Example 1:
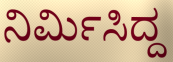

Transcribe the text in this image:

ನಿರ್ಮಿಸಿದ್ದ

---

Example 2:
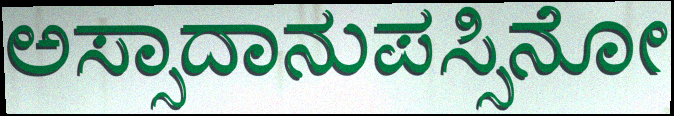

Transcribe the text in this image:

ಅಸ್ಸಾದಾನುಪಸ್ಸಿನೋ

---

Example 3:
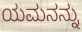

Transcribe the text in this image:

ಯಮನನ್ನು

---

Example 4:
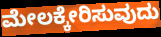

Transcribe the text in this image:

ಮೇಲಕ್ಕೇರಿಸುವುದು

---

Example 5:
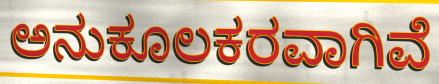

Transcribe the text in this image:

ಅನುಕೂಲಕರವಾಗಿವೆ